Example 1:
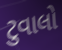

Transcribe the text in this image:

ટુવાલો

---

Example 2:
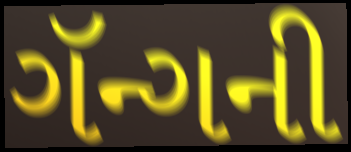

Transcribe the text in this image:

ગૅન્ગની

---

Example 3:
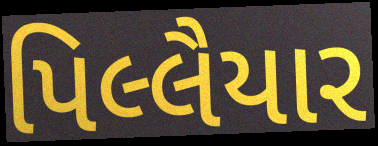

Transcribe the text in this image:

પિલ્લૈયાર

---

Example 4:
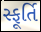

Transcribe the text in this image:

સ્ફૂર્તિ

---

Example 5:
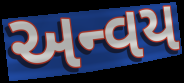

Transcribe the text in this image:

અન્વય